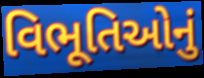
વિભૂતિઓનું